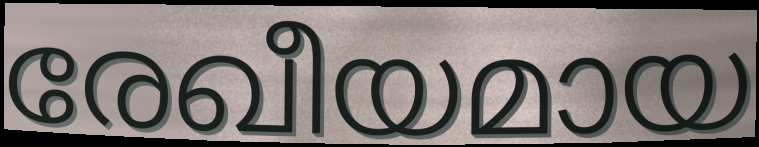
രേഖീയമായ